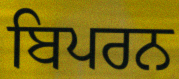
ਬਿਪਰਨ